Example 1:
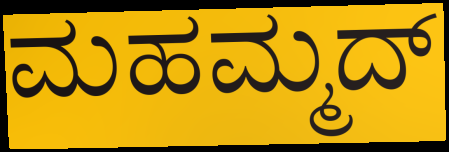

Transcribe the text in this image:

ಮಹಮ್ಮದ್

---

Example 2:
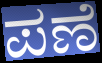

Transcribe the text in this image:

ಪಣೆ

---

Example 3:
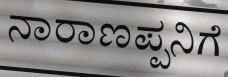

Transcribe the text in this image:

ನಾರಾಣಪ್ಪನಿಗೆ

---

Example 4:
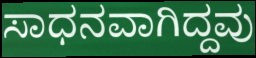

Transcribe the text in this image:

ಸಾಧನವಾಗಿದ್ದವು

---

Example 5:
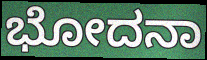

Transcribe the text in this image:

ಭೋದನಾ